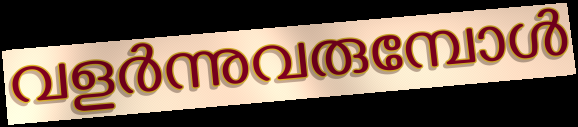
വളർന്നുവരുമ്പോൾ